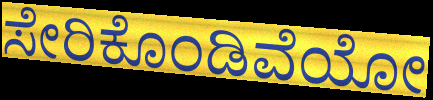
ಸೇರಿಕೊಂಡಿವೆಯೋ